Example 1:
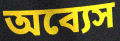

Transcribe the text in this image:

অব্যেস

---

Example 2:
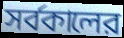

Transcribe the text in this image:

সর্বকালের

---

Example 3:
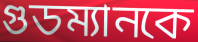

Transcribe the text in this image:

গুডম্যানকে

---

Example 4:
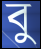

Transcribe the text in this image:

বু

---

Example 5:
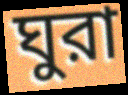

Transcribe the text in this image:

ঘুরা